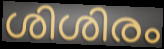
ശിശിരം